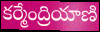
కర్మేంద్రియాణి